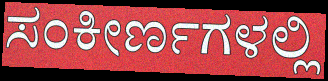
ಸಂಕೀರ್ಣಗಳಲ್ಲಿ